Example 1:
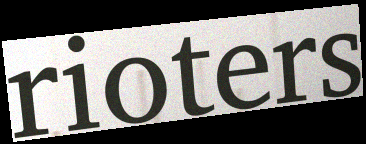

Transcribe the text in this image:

rioters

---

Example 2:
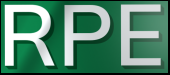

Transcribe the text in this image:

RPE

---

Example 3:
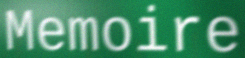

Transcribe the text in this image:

Memoire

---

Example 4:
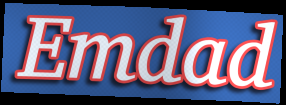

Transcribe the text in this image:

Emdad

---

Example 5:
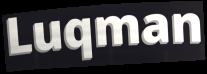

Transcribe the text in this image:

Luqman